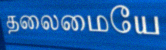
தலைமையே